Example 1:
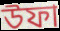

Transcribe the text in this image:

উফা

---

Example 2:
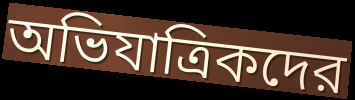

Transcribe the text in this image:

অভিযাত্রিকদের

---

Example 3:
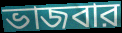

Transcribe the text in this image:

ভাজবার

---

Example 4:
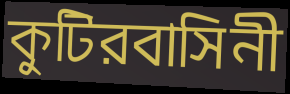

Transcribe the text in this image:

কুটিরবাসিনী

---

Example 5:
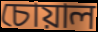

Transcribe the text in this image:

চোয়াল